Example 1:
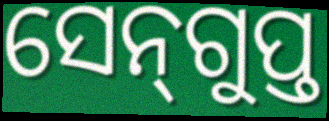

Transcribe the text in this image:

ସେନ୍‌ଗୁପ୍ତ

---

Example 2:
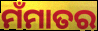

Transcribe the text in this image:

ମଁମାତର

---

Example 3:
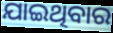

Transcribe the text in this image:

ଯାଇଥିବାର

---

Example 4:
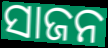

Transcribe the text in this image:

ସାଜନ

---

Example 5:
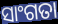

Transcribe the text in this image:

ସାଂଗତା